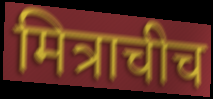
मित्राचीच